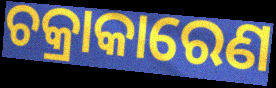
ଚକ୍ରାକାରେଣ